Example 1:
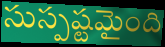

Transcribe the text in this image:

సుస్పష్టమైంది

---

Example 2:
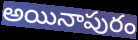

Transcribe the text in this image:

అయినాపురం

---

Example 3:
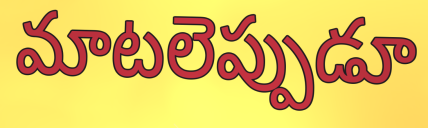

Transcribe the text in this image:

మాటలెప్పుడూ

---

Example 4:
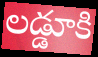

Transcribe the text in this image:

లడ్డూకి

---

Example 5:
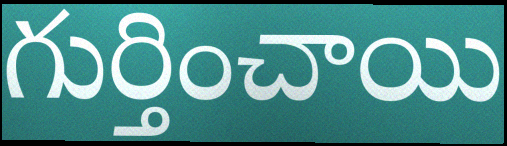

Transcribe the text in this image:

గుర్తించాయి